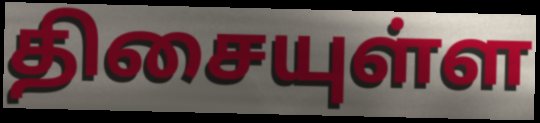
திசையுள்ள